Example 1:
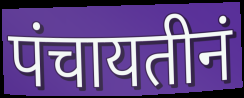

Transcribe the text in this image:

पंचायतीनं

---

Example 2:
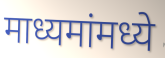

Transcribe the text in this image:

माध्यमांमध्ये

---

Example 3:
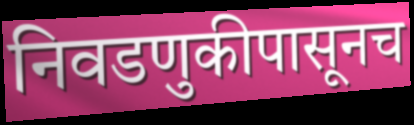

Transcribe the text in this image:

निवडणुकीपासूनच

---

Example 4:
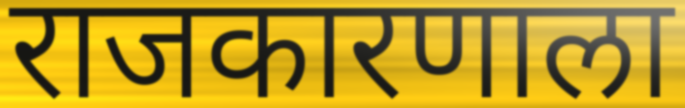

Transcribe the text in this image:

राजकारणाला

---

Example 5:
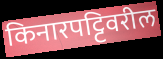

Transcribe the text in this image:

किनारपट्टिवरील